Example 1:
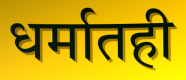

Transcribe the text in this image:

धर्मातही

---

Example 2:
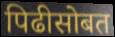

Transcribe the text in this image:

पिढीसोबत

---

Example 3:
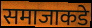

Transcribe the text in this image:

समाजाकडे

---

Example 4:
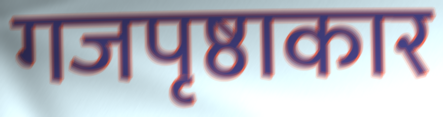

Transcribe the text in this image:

गजपृष्ठाकार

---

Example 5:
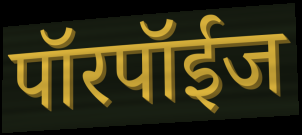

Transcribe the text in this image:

पॉरपॉईज